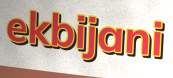
ekbijani